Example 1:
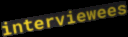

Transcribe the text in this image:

interviewees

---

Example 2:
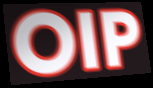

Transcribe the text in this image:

OIP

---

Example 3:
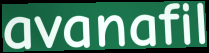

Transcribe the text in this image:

avanafil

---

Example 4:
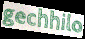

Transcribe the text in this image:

gechhilo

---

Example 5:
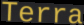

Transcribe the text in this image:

Terra